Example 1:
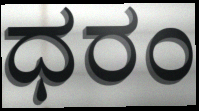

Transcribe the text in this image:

ಧರಂ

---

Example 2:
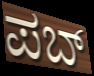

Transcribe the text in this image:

ಪಬ್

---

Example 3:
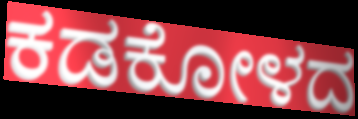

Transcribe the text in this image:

ಕಡಕೋಳದ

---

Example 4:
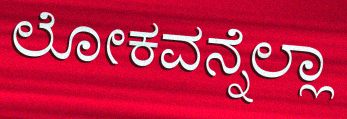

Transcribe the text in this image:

ಲೋಕವನ್ನೆಲ್ಲಾ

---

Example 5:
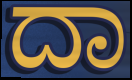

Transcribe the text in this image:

ದಾ